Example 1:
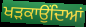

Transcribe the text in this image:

ਖੜਕਾਉਂਦਿਆਂ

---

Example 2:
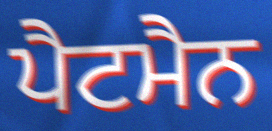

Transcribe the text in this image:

ਪੈਟਮੈਨ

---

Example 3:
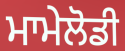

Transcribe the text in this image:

ਮਾਮੇਲੋਡੀ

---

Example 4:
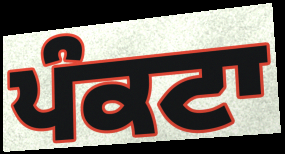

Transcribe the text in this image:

ਪੰਕਟਾ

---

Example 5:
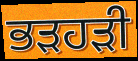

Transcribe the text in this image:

ਭੜਹੜੀ